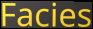
Facies